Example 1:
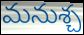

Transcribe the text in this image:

మనుశ్చ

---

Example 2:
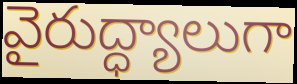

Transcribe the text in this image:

వైరుద్ధ్యాలుగా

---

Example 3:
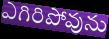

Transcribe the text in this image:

ఎగిరిపోవును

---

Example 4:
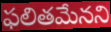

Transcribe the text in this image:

ఫలితమేనని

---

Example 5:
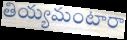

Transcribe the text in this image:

తియ్యమంటారా